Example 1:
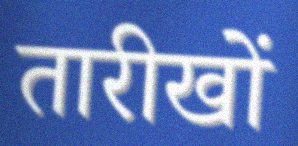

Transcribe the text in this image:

तारीखों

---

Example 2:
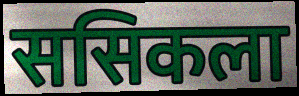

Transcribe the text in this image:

ससिकला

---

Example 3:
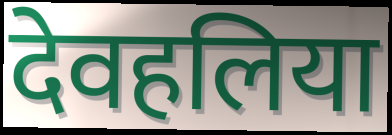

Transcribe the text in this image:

देवहलिया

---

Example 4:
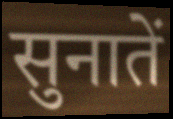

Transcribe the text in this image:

सुनातें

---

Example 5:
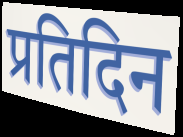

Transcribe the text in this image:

प्रतिदिन